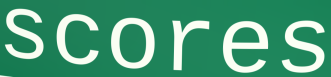
scores